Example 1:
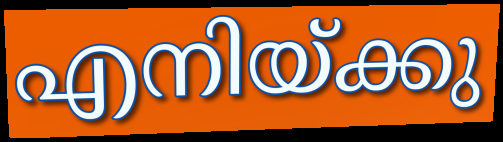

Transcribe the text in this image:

എനിയ്ക്കു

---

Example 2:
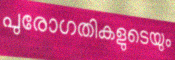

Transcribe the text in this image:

പുരോഗതികളുടെയും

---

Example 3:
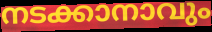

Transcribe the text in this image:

നടക്കാനാവും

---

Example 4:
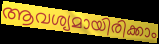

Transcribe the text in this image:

ആവശ്യമായിരിക്കാം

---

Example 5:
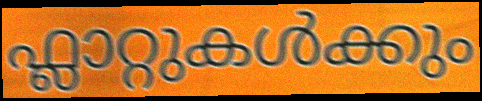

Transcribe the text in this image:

ഫ്ലാറ്റുകൾക്കും